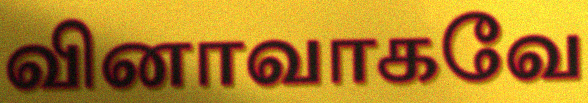
வினாவாகவே